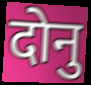
दोनु